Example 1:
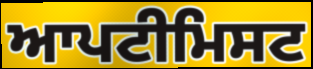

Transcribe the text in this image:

ਆਪਟੀਮਿਸਟ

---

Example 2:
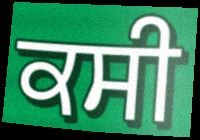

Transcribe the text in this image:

ਕਸੀ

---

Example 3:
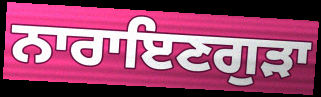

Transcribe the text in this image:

ਨਾਰਾਇਣਗੁੜਾ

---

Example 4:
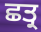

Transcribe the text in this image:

ਛਤ੍ਰ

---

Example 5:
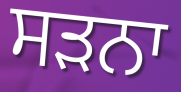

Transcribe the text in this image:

ਸੜਨਾ